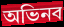
অভিনব